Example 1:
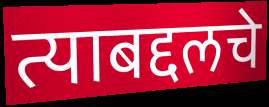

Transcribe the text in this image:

त्याबद्दलचे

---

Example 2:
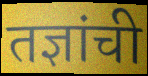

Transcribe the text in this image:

तज्ञांची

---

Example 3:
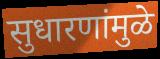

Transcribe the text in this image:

सुधारणांमुळे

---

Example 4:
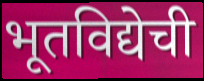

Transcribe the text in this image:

भूतविद्येची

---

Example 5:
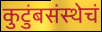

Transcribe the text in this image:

कुटुंबसंस्थेचं